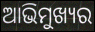
ଆଭିମୁଖ୍ୟର